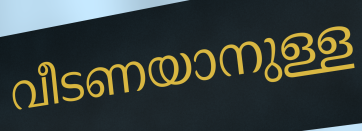
വീടണയാനുള്ള